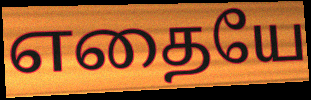
எதையே